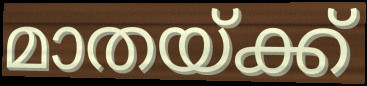
മാതയ്ക്ക്